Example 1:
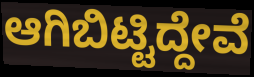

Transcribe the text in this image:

ಆಗಿಬಿಟ್ಟಿದ್ದೇವೆ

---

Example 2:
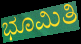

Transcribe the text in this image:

ಭೂಮಿತಿ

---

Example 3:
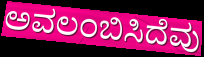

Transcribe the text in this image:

ಅವಲಂಬಿಸಿದೆವು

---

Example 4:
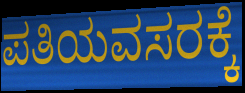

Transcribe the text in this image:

ಪತಿಯವಸರಕ್ಕೆ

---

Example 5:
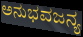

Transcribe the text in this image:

ಅನುಭವಜನ್ಯ